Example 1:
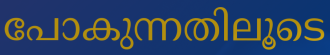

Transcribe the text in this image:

പോകുന്നതിലൂടെ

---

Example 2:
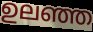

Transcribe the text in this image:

ഉലഞ്ഞ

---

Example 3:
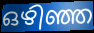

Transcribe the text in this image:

ഒഴിഞ്ഞ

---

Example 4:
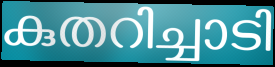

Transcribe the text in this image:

കുതറിച്ചാടി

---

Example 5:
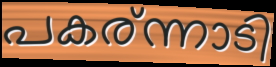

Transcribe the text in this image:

പകര്ന്നാടി